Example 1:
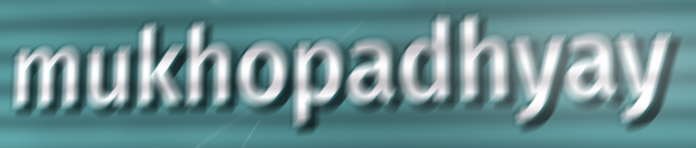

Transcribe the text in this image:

mukhopadhyay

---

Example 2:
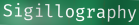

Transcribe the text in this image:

Sigillography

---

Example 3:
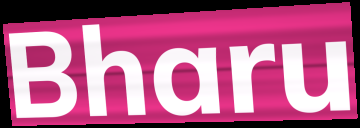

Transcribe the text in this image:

Bharu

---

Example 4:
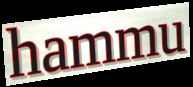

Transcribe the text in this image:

hammu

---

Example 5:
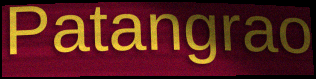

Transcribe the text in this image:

Patangrao